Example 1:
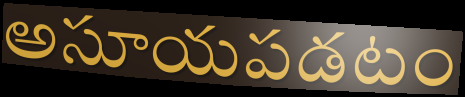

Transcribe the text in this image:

అసూయపడటం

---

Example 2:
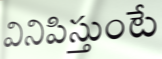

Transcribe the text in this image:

వినిపిస్తుంటే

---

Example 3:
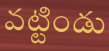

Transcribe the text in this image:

వట్టిండు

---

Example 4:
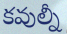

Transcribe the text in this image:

కవుల్నీ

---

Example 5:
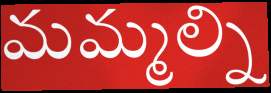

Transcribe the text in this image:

మమ్మల్ని